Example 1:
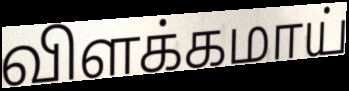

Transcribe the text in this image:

விளக்கமாய்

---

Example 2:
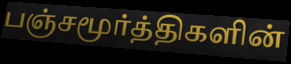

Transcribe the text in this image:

பஞ்சமூர்த்திகளின்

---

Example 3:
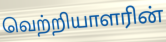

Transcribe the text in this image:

வெற்றியாளரின்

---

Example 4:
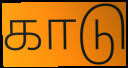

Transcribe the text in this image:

காடு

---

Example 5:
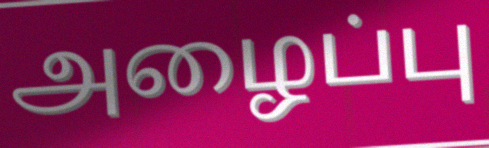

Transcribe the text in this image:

அழைப்பு